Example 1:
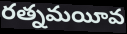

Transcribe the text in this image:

రత్నమయీవ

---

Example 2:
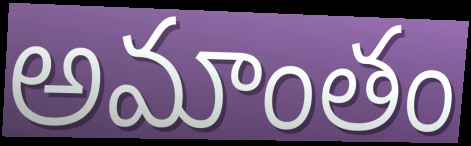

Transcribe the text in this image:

అమాంతం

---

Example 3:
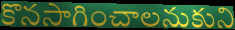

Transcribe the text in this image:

కొనసాగించాలనుకుని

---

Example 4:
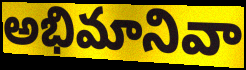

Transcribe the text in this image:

అభిమానివా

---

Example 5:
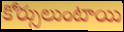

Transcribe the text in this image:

కోర్సులుంటాయి